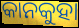
କାନକୁହା